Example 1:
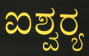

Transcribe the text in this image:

ಐಶ್ವರ‍್ಯ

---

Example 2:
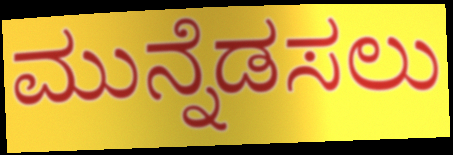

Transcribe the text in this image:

ಮುನ್ನೆಡಸಲು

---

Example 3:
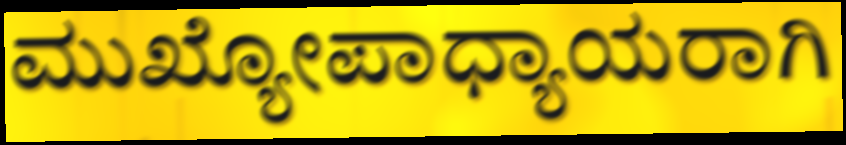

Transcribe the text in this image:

ಮುಖ್ಯೋಪಾಧ್ಯಾಯರಾಗಿ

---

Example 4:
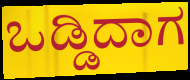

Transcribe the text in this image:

ಒಡ್ಡಿದಾಗ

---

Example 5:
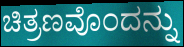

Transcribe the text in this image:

ಚಿತ್ರಣವೊಂದನ್ನು